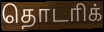
தொடரிக்